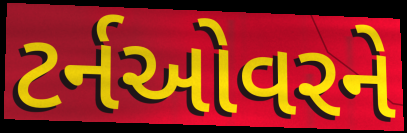
ટર્નઓવરને